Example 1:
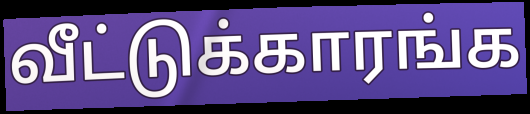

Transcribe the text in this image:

வீட்டுக்காரங்க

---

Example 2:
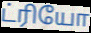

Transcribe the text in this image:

ட்ரியோ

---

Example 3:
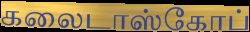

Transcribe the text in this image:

கலைடாஸ்கோப்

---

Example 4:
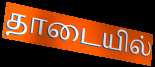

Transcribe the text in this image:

தாடையில்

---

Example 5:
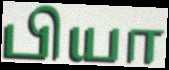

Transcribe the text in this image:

பியா